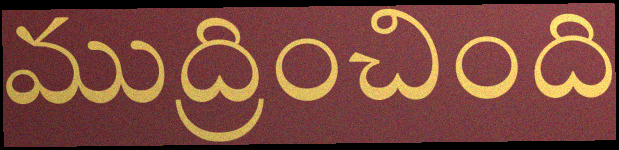
ముద్రించింది